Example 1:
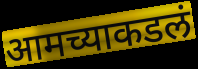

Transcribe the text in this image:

आमच्याकडलं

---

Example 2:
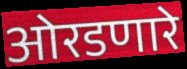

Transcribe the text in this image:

ओरडणारे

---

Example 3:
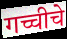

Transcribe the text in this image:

गच्चीचे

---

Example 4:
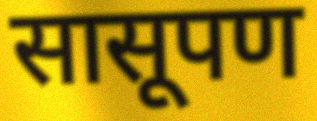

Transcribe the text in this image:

सासूपण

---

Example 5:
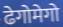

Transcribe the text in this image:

ढेगोमेगो